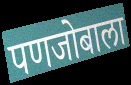
पणजोबाला